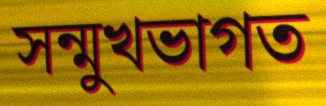
সন্মুখভাগত